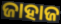
ଜାହାଜ